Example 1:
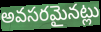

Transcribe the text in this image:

అవసరమైనట్లు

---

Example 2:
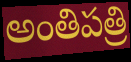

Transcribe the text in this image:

అంతిపత్రి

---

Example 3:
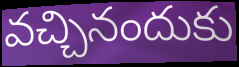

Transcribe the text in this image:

వచ్చినందుకు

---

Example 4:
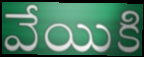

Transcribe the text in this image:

వేయికి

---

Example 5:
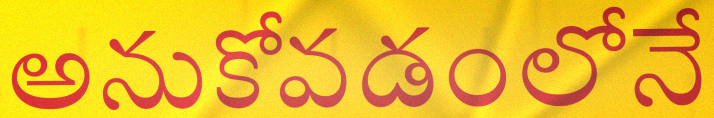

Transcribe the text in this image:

అనుకోవడంలోనే